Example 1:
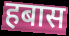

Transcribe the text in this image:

हबास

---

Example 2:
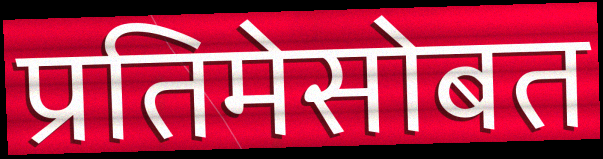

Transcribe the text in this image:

प्रतिमेसोबत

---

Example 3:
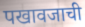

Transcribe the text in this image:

पखावजाची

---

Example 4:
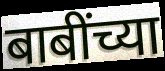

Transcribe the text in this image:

बाबींच्या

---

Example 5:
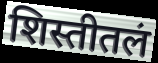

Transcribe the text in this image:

शिस्तीतलं